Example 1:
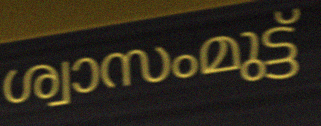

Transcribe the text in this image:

ശ്വാസംമുട്ട്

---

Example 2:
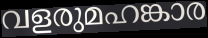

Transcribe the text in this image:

വളരുമഹങ്കാര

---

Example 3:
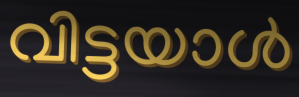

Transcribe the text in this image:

വിട്ടയാൾ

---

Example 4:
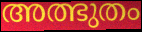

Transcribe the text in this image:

അത്ഭുതം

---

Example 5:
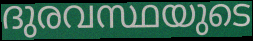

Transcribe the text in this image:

ദുരവസ്ഥയുടെ